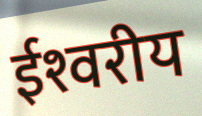
ईश्वरीय